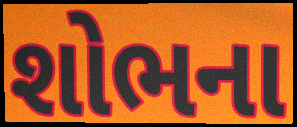
શોભના